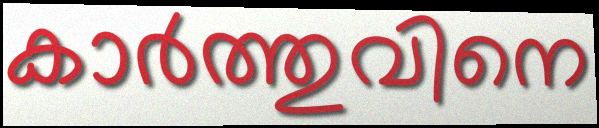
കാർത്തുവിനെ